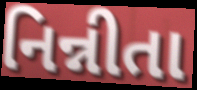
નિન્નીતા